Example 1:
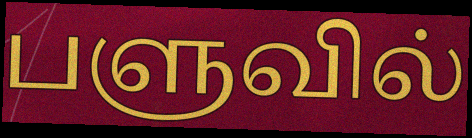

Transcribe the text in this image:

பளுவில்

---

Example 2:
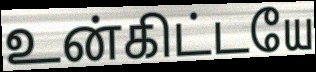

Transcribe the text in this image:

உன்கிட்டயே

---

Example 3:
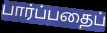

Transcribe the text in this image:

பார்ப்பதைப்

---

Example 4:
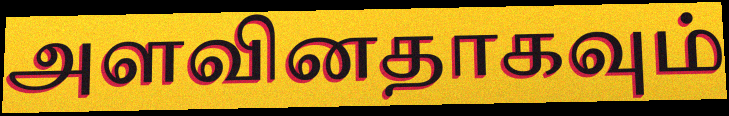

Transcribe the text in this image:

அளவினதாகவும்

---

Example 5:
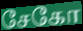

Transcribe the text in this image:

சேகோ